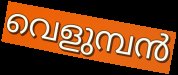
വെളുമ്പൻ